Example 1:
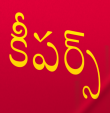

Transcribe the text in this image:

కీపర్స్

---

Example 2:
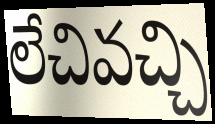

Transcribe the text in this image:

లేచివచ్చి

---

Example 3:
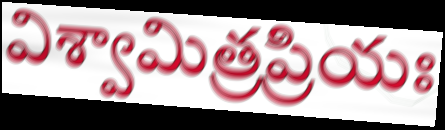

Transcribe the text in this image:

విశ్వామిత్రప్రియః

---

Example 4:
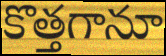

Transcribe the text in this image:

కొత్తగానూ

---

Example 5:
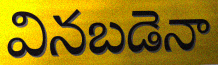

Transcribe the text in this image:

వినబడెనా